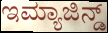
ಇಮ್ಯಾಜಿನ್ಡ್